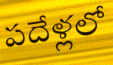
పదేళ్లలో